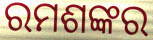
ରମଶଙ୍କର